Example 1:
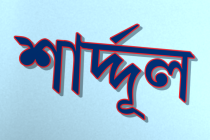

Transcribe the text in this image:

শার্দ্দূল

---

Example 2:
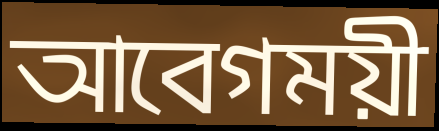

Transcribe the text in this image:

আবেগময়ী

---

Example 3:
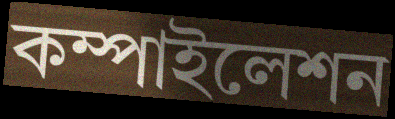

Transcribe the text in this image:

কম্পাইলেশন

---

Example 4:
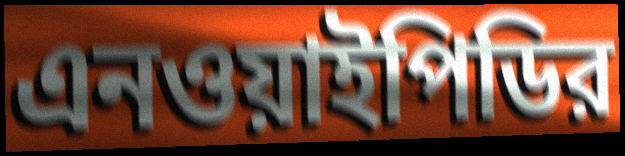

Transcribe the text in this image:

এনওয়াইপিডির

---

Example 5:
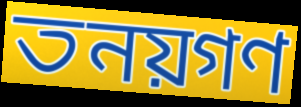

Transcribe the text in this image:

তনয়গণ